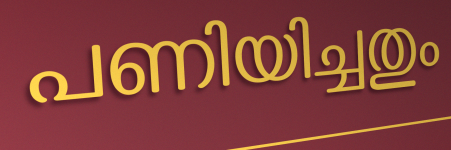
പണിയിച്ചതും